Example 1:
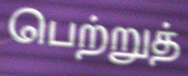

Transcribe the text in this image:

பெற்றுத்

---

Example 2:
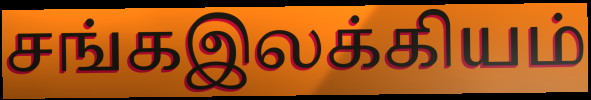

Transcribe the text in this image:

சங்கஇலக்கியம்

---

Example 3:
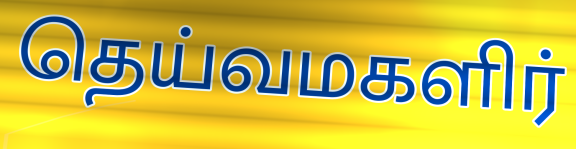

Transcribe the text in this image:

தெய்வமகளிர்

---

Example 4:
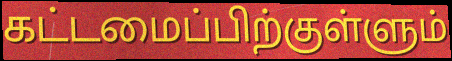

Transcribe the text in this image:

கட்டமைப்பிற்குள்ளும்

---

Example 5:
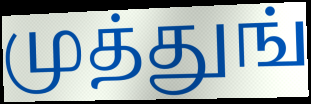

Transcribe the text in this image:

முத்துங்